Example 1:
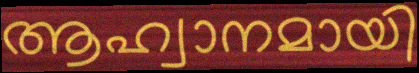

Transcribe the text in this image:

ആഹ്വാനമായി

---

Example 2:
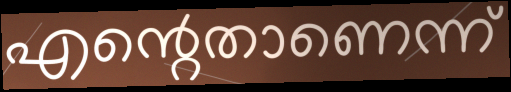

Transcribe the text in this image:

എന്റെതാണെന്ന്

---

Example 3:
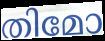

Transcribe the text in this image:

തിമോ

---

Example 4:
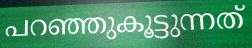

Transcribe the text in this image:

പറഞ്ഞുകൂട്ടുന്നത്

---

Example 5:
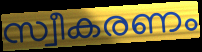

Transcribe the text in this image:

സ്വീകരണം